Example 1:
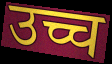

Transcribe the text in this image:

उच्‍च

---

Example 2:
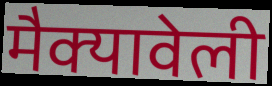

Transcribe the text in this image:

मैक्यावेली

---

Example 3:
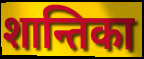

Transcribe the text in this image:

शान्तिका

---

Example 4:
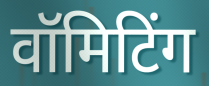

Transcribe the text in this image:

वॉमिटिंग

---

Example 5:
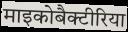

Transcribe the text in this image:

माइकोबैक्टीरिया